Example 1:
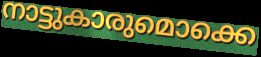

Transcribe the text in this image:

നാട്ടുകാരുമൊക്കെ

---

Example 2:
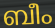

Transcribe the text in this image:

ബീം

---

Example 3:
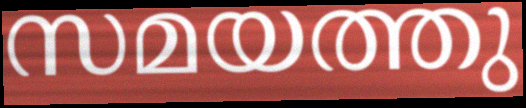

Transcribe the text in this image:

സമയത്തു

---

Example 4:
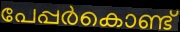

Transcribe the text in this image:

പേപ്പർകൊണ്ട്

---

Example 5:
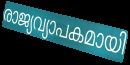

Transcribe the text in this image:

രാജ്യവ്യാപകമായി